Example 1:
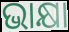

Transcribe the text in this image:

ଭାକ୍ଷା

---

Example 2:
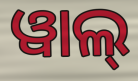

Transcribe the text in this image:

ୱାଲ୍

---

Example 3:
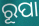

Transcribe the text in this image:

ରୂପା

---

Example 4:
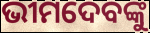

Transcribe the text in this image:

ଭୀମଦେବଙ୍କୁ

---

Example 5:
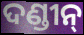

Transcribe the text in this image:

ଦଣ୍ଡୀନ୍